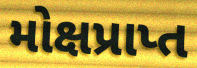
મોક્ષપ્રાપ્ત